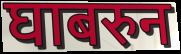
घाबरुन